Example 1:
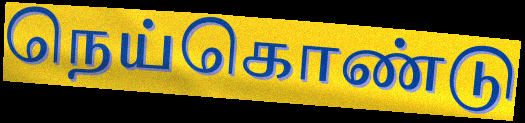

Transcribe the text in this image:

நெய்கொண்டு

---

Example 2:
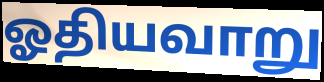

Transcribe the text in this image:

ஓதியவாறு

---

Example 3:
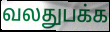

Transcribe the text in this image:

வலதுபக்க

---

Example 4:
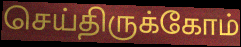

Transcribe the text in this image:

செய்திருக்கோம்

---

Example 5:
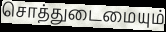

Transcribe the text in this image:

சொத்துடைமையும்